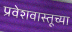
प्रवेशवास्तूच्या